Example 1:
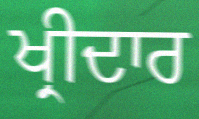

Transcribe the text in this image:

ਖ੍ਰੀਦਾਰ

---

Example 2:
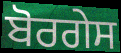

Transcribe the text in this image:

ਬੋਰਗੇਸ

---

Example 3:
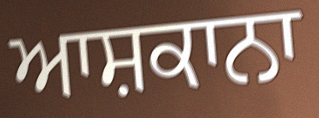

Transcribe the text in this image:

ਆਸ਼ਕਾਨਾ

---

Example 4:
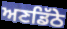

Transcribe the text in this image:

ਅਣਡਿੱਠੇ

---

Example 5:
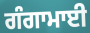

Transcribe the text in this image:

ਗੰਗਾਮਾਈ